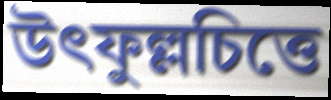
উৎফুল্লচিত্তে